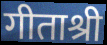
गीताश्री